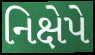
નિક્ષેપે